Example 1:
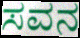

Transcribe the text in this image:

ಸವನ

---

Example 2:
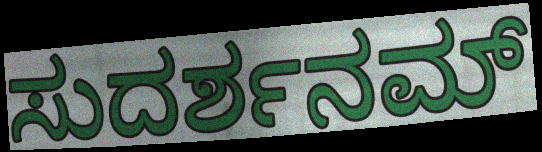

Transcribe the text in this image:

ಸುದರ್ಶನಮ್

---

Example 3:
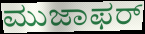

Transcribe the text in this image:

ಮುಜಾಫರ್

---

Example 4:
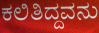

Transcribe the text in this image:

ಕಲಿತಿದ್ದವನು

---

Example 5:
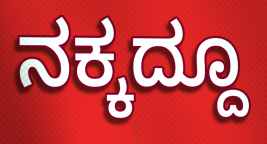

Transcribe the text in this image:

ನಕ್ಕದ್ದೂ